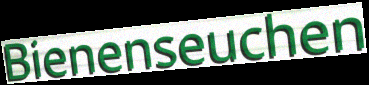
Bienenseuchen